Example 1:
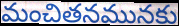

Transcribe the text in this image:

మంచితనమునకు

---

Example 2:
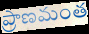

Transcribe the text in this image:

ప్రాణమంత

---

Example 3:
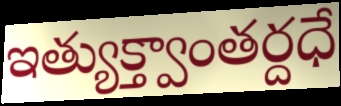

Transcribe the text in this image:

ఇత్యుక్త్వాంతర్దధే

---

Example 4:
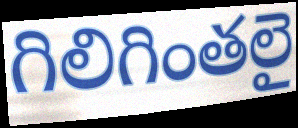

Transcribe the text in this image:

గిలిగింతలై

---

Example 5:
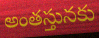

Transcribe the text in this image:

అంతస్తునకు